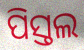
ପିସ୍ତଲ